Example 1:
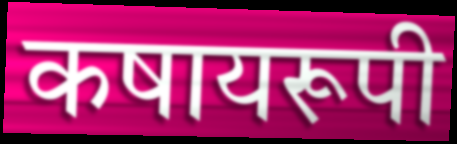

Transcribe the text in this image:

कषायरूपी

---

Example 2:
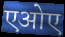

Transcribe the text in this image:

एओए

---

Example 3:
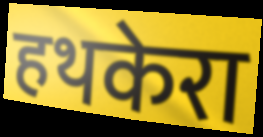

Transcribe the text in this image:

हथकेरा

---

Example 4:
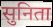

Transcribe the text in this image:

सुनिता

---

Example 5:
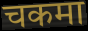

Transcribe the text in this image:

चकमा